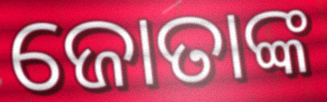
ଜୋତାଙ୍କ